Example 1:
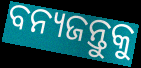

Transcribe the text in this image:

ବନ୍ୟଜନ୍ତୁକୁ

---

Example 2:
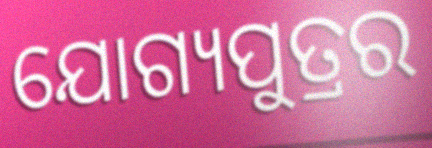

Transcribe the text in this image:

ଯୋଗ୍ୟପୁତ୍ରର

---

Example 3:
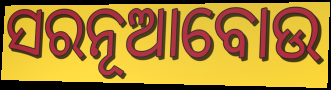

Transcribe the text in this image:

ସରନୂଆବୋଉ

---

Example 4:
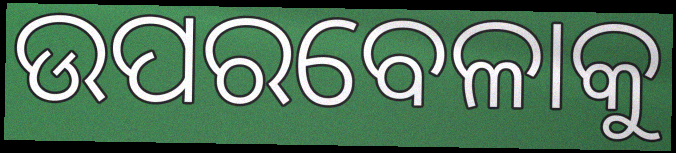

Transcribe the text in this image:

ଉପରବେଳାକୁ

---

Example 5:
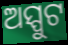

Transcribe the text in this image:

ଅସ୍ପୁଟ